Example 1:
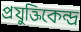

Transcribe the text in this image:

প্রযুক্তিকেন্দ্র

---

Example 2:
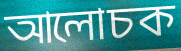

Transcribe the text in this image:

আলোচক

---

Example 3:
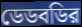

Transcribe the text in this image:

ডেডবডির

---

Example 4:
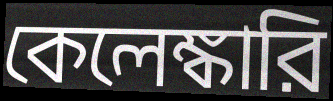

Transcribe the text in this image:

কেলেঙ্কারি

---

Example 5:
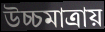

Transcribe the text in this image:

উচ্চমাত্রায়